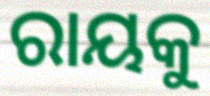
ରାୟକୁ